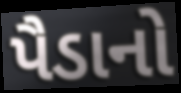
પૈડાનો